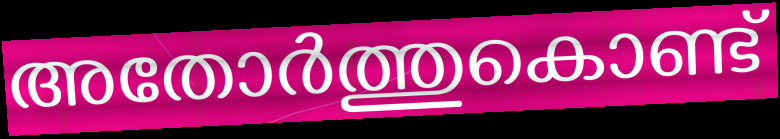
അതോർത്തുകൊണ്ട്